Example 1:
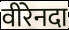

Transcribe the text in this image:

वीरेनदा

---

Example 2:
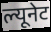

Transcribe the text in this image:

ल्यूनेट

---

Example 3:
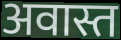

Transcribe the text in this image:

अवास्त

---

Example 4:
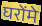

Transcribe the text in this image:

घरोंमे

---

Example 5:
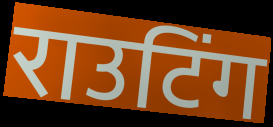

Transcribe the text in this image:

राउटिंग